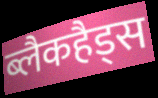
ब्लैकहैड्स